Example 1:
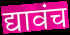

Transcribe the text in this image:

द्यावंच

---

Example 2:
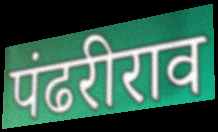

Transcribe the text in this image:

पंढरीराव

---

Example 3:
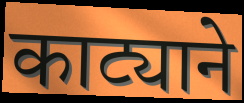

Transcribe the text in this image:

काट्याने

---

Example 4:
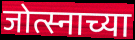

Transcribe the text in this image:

जोत्स्नाच्या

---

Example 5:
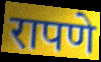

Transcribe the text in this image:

रापणे